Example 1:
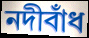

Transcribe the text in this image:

নদীবাঁধ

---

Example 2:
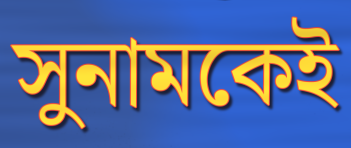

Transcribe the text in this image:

সুনামকেই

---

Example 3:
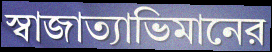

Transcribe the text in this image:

স্বাজাত্যাভিমানের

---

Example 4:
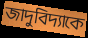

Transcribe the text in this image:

জাদুবিদ্যাকে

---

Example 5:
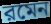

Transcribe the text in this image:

রমেন